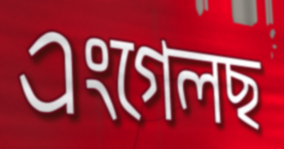
এংগেলছ